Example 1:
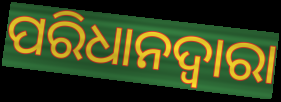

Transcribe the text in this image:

ପରିଧାନଦ୍ୱାରା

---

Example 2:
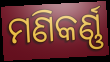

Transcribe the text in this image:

ମଣିକର୍ଣ୍ଣ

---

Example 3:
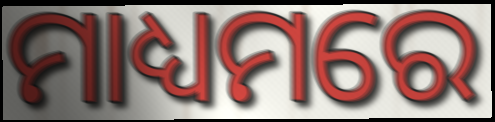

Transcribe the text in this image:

ମାଧ୍ୟମରେ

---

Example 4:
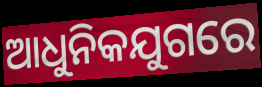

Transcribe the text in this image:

ଆଧୁନିକଯୁଗରେ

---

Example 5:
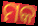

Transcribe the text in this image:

ମକ